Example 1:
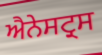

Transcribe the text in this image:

ਐਨੇਸਟ੍ਰਸ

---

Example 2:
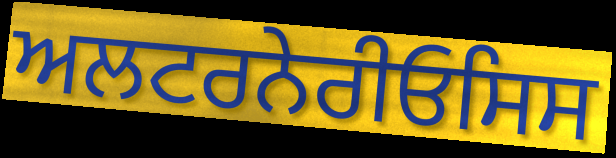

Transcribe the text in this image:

ਅਲਟਰਨੇਰੀਓਸਿਸ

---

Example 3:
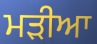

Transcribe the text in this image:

ਮਡ਼ੀਆ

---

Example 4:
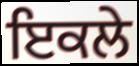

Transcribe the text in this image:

ਇਕਲੇ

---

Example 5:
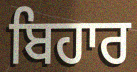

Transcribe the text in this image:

ਬਿਹਾਰ